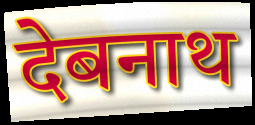
देबनाथ